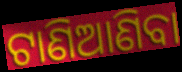
ଟାଣିଆଣିବା